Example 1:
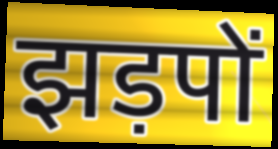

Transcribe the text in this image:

झड़पों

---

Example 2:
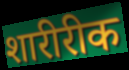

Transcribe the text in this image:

शारीरीक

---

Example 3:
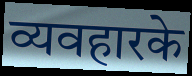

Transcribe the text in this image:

व्यवहारके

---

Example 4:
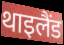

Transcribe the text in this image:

थाइलैंड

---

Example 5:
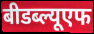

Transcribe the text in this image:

बीडब्ल्यूएफ